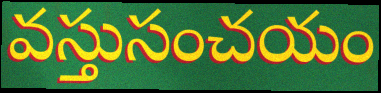
వస్తుసంచయం